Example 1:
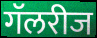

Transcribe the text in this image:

गॅलरीज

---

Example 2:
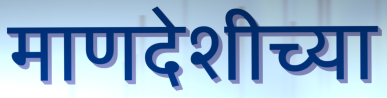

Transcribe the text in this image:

माणदेशीच्या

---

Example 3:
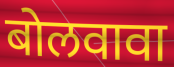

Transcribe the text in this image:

बोलवावा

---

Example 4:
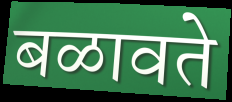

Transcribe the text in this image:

बळावते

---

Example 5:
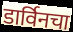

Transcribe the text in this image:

डार्विनचा